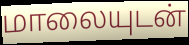
மாலையுடன்